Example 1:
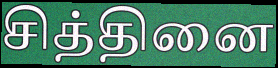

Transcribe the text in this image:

சித்தினை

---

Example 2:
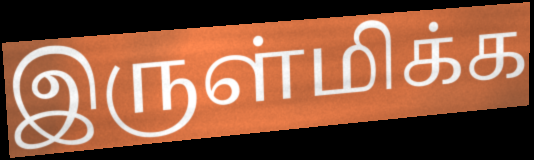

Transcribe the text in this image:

இருள்மிக்க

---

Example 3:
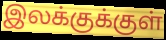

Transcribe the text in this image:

இலக்குக்குள்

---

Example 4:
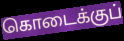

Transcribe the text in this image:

கொடைக்குப்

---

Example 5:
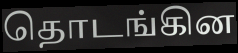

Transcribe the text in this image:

தொடங்கின